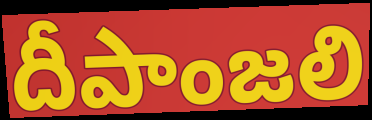
దీపాంజలి